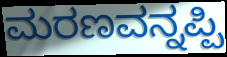
ಮರಣವನ್ನಪ್ಪಿ